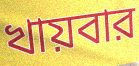
খায়বার